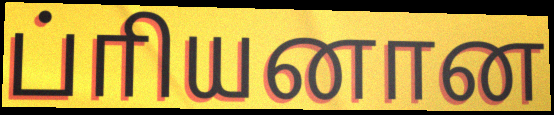
ப்ரியனான